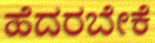
ಹೆದರಬೇಕೆ